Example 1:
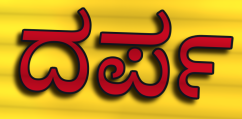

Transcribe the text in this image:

ದರ್ಪ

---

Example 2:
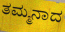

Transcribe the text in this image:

ತಮ್ಮನಾದ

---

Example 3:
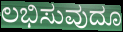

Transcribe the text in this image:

ಲಭಿಸುವುದೂ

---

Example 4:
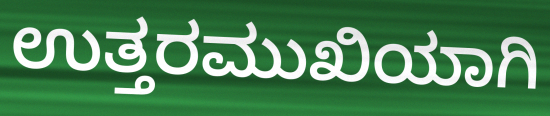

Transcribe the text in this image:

ಉತ್ತರಮುಖಿಯಾಗಿ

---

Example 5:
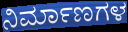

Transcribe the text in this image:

ನಿರ್ಮಾಣಗಳ